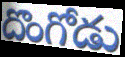
దొంగోడు